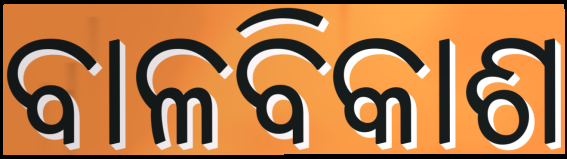
ବାଳବିକାଶ